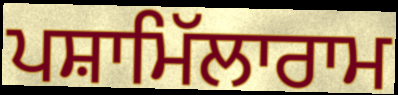
ਪਸ਼ਾਮਿੱਲਾਰਾਮ